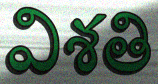
విశతి